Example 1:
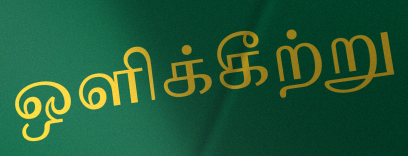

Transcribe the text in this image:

ஒளிக்கீற்று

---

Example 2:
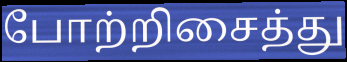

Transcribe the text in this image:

போற்றிசைத்து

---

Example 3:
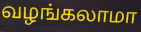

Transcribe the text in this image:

வழங்கலாமா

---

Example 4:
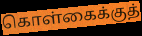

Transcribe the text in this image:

கொள்கைக்குத்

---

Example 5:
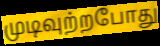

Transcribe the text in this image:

முடிவுற்றபோது